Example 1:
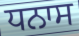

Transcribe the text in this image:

ਧਨਾਸ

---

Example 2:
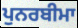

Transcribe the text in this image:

ਪੁਨਰਬੀਮਾ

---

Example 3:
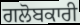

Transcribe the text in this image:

ਗਲੋਬਕਾਰੀ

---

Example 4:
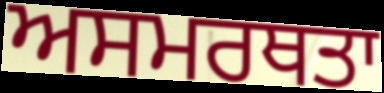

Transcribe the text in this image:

ਅਸਮਰਥਤਾ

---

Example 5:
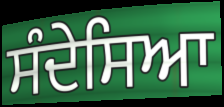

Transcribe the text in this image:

ਸੰਦੇਸਿਆ